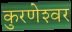
कुरणेश्वर